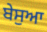
ਬੇਸੁਆ